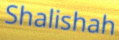
Shalishah